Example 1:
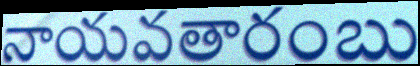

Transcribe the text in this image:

నాయవతారంబు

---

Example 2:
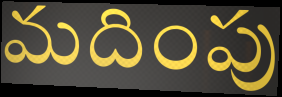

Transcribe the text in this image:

మదింపు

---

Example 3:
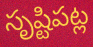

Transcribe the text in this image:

సృష్టిపట్ల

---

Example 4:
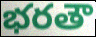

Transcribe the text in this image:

భరతౌ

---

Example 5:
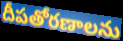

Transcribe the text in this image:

దీపతోరణాలను